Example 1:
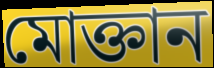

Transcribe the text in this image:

মোক্তান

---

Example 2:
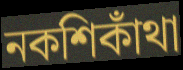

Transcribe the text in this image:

নকশিকাঁথা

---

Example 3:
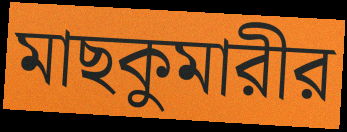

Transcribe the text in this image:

মাছকুমারীর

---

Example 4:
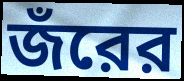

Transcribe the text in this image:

জঁরের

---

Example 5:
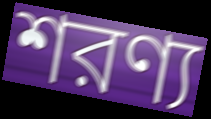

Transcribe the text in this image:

শরণ্য